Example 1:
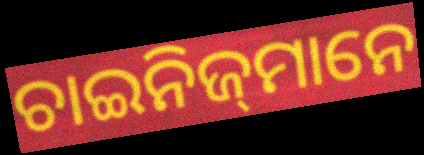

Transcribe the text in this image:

ଚାଇନିଜ୍‍ମାନେ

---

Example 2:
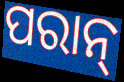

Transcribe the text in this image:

ପରାନ୍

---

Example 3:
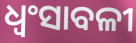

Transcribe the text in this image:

ଧ୍ୱଂସାବଳୀ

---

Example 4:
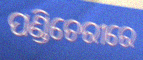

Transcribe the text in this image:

ପଣ୍ଡିଚେରୀରେ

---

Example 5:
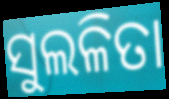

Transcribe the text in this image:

ସୁଲଳିତା